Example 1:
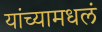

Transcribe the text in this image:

यांच्यामधलं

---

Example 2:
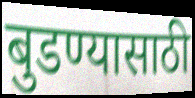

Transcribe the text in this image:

बुडण्यासाठी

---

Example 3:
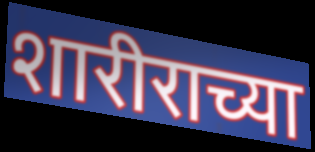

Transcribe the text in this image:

शारीराच्या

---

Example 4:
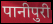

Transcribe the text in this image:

पानीपुरी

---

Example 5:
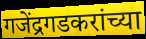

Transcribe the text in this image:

गजेंद्रगडकरांच्या